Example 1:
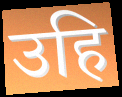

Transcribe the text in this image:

उहि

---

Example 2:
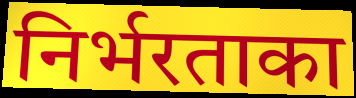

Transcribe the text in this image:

निर्भरताका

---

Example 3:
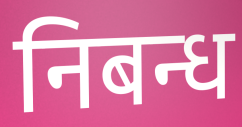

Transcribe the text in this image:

निबन्ध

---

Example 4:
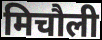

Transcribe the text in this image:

मिचौली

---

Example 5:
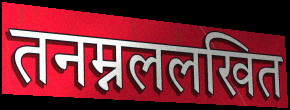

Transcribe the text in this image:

तनम्नललखित